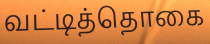
வட்டித்தொகை